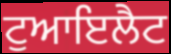
ਟੁਆਇਲੈਟ